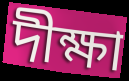
দীক্ষা